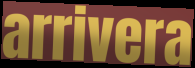
arrivera